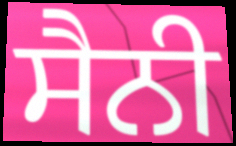
ਸੈਨੀ